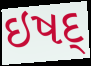
ઇષદ્